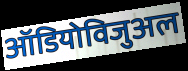
ऑडियोविजुअल